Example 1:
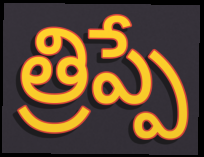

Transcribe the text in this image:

త్రిప్పే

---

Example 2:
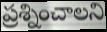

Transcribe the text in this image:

ప్రశ్నించాలని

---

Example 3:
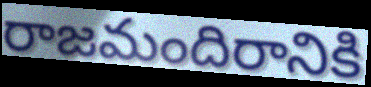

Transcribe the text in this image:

రాజమందిరానికి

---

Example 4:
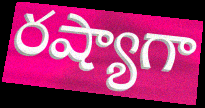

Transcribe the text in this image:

రష్యాగా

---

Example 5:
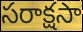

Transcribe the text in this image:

సరాక్షసా